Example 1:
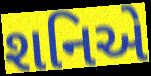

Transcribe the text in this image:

શનિએ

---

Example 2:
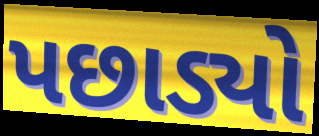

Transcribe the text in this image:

પછાડ્યો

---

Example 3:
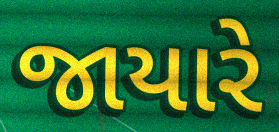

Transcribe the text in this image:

જાયારે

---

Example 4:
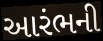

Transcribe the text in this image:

આરંભની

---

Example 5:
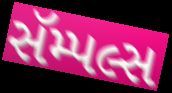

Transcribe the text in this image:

સૅમ્પલ્સ